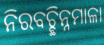
ନିରବଚ୍ଛିନ୍ନମାଳା